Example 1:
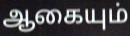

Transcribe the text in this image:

ஆகையும்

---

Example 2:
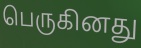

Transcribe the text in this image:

பெருகினது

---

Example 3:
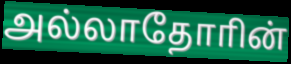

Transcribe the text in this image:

அல்லாதோரின்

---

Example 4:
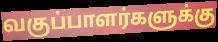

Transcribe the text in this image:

வகுப்பாளர்களுக்கு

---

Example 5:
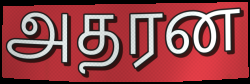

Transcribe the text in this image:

அதரன